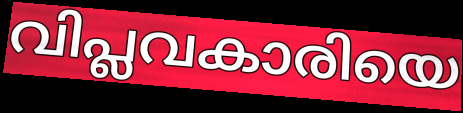
വിപ്ലവകാരിയെ